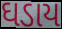
ઘડાય